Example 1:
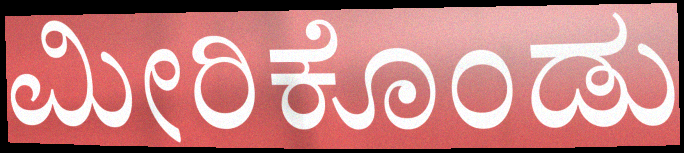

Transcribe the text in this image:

ಮೀರಿಕೊಂಡು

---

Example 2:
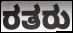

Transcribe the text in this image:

ರತರು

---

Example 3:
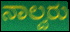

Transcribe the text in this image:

ನಾಲ್ವರು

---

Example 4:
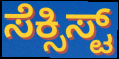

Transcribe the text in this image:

ಸೆಕ್ಸಿಸ್ಟ್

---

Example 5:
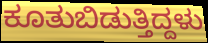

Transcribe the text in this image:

ಕೂತುಬಿಡುತ್ತಿದ್ದಳು